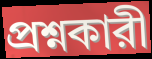
প্রশ্নকারী